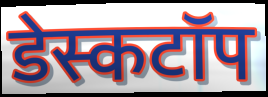
डेस्कटॉप